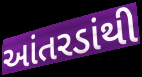
આંતરડાંથી